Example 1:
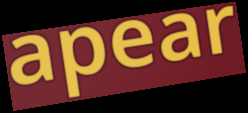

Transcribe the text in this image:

apear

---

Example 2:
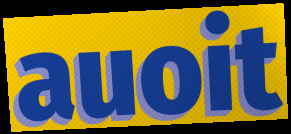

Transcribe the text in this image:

auoit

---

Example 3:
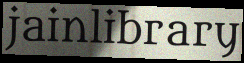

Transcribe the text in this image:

jainlibrary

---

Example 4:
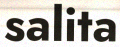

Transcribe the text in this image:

salita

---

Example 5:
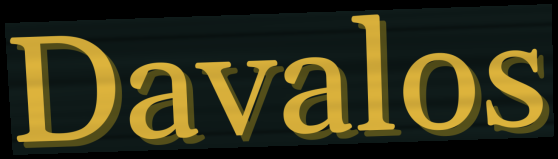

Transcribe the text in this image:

Davalos